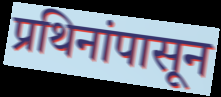
प्रथिनांपासून